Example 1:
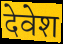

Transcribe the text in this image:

देवेश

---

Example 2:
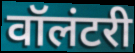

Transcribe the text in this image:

वॉलंटरी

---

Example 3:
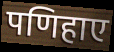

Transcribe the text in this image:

पणिहाए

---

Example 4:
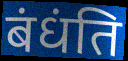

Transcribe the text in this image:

बंधंति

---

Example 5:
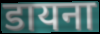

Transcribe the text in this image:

डायना